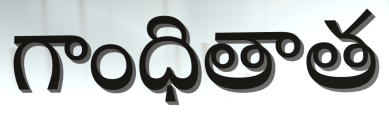
గాంధితాత